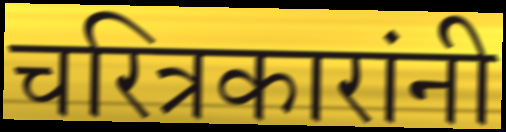
चरित्रकारांनी